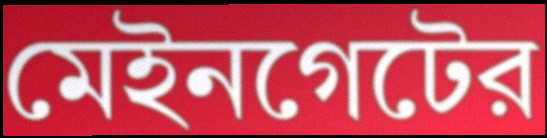
মেইনগেটের